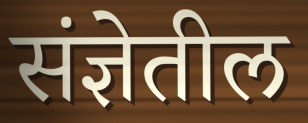
संज्ञेतील